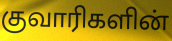
குவாரிகளின்